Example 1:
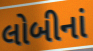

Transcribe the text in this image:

લોબીનાં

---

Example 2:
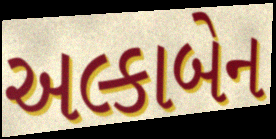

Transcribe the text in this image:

અલ્કાબેન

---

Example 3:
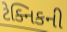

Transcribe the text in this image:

ટેક્નિકની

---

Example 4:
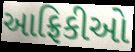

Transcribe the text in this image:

આફ્રિકીઓ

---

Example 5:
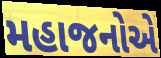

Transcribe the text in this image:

મહાજનોએ